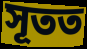
সূতত